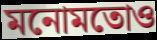
মনোমতোও